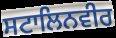
ਸਟਾਲਿਨਵੀਰ